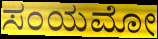
ಸಂಯಮೋ